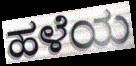
ಹಳೆಯ